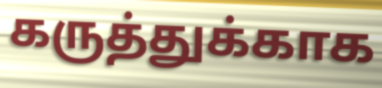
கருத்துக்காக